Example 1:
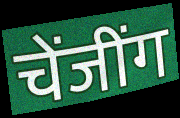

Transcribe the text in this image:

चेंजींग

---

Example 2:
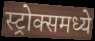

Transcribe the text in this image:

स्ट्रोक्समध्ये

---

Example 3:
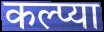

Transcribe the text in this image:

कल्प्या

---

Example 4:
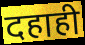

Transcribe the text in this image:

दहाही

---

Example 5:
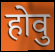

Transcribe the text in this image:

होवु